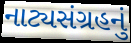
નાટ્યસંગ્રહનું